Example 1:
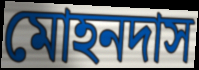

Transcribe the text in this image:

মোহনদাস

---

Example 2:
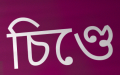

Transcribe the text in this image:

চিণ্ডে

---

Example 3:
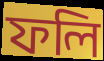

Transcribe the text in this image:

ফলি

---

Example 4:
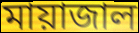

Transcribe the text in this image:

মায়াজাল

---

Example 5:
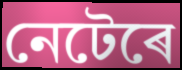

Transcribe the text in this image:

নেটেৰে